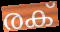
രക്